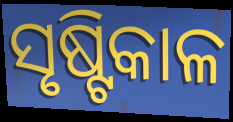
ସୃଷ୍ଟିକାଳ